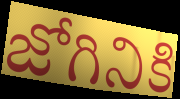
జోగినికి